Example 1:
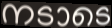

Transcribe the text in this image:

നടാടെ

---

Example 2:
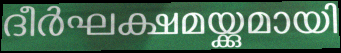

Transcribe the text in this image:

ദീർഘക്ഷമയ്ക്കുമായി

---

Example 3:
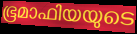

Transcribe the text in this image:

ഭൂമാഫിയയുടെ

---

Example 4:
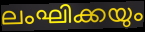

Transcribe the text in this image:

ലംഘിക്കയും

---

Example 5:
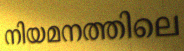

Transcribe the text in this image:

നിയമനത്തിലെ